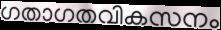
ഗതാഗതവികസനം